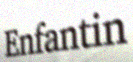
Enfantin